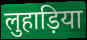
लुहाड़िया